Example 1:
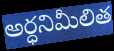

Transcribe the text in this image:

అర్ధనిమీలిత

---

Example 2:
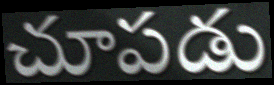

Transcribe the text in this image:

చూపడు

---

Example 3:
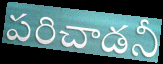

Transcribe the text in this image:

పరిచాడనీ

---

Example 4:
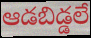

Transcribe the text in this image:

ఆడబిడ్డలే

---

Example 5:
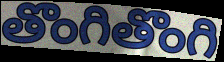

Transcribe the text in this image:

తొంగితొంగి